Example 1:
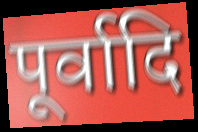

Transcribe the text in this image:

पूर्वादि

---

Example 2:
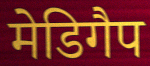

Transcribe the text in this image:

मेडिगैप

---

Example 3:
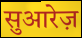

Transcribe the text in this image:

सुआरेज़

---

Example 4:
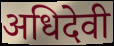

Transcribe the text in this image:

अधिदेवी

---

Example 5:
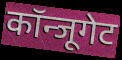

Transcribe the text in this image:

कॉन्जूगेट